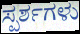
ಸ್ಪರ್ಶಗಳು